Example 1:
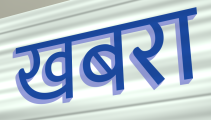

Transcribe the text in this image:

खबरा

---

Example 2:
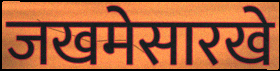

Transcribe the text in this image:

जखमेसारखे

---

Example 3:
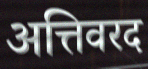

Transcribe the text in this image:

अत्तिवरद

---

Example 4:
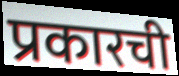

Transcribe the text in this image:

प्रकारची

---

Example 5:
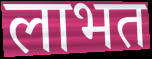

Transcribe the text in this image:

लाभत